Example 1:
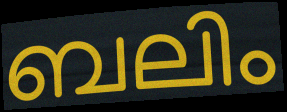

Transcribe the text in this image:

ബലിം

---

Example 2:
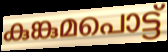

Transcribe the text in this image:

കുങ്കുമപൊട്ട്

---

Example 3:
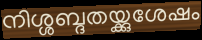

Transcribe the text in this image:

നിശ്ശബ്ദതയ്ക്കുശേഷം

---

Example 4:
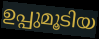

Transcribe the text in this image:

ഉപ്പുമൂടിയ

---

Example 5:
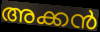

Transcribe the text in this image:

അക്കൻ